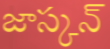
జాస్కన్